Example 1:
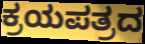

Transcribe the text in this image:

ಕ್ರಯಪತ್ರದ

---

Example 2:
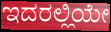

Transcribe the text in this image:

ಇದರಲ್ಲಿಯೇ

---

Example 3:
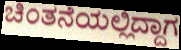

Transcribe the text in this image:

ಚಿಂತನೆಯಲ್ಲಿದ್ದಾಗ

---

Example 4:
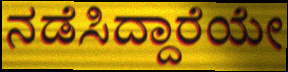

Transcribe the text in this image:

ನಡೆಸಿದ್ದಾರೆಯೇ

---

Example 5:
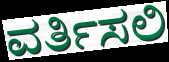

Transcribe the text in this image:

ವರ್ತಿಸಲಿ